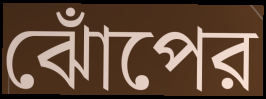
ঝোঁপের